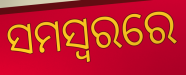
ସମସ୍ବରରେ